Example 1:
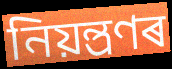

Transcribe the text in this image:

নিয়ন্ত্ৰণৰ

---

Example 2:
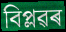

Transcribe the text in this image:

বিপ্লৱৰ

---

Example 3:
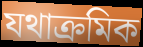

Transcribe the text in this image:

যথাক্ৰমিক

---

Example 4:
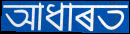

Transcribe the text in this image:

আধাৰত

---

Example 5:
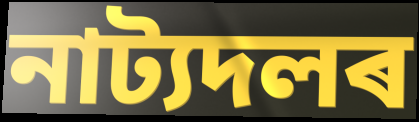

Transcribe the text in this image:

নাট্যদলৰ